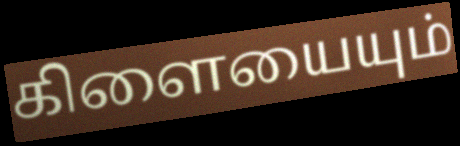
கிளையையும்